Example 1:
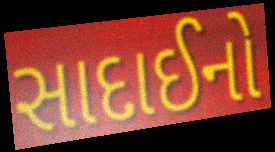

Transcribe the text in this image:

સાદાઈનો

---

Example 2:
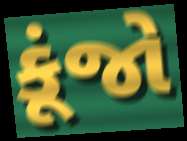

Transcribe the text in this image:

કૂંજો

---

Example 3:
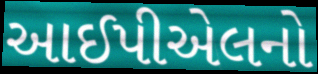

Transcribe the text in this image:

આઈપીએલનો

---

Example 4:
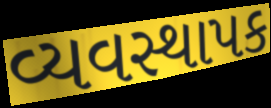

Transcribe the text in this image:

વ્યવસ્થાપક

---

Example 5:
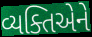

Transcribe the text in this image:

વ્યક્તિએને